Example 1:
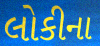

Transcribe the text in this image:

લોકીના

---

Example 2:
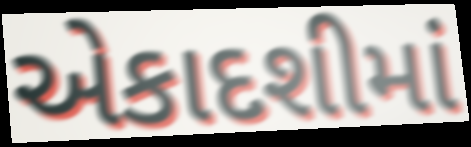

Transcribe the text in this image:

એકાદશીમાં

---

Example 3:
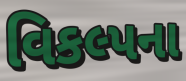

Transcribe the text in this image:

વિકલ્પના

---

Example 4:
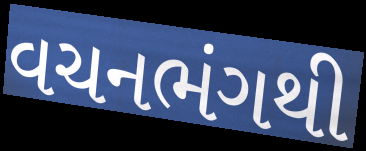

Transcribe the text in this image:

વચનભંગથી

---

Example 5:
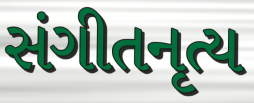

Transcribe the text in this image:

સંગીતનૃત્ય